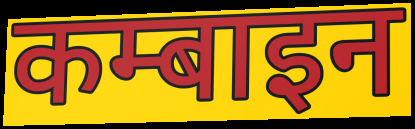
कम्बाइन